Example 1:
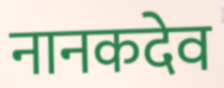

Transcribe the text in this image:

नानकदेव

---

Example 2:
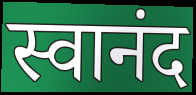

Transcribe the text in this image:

स्वानंद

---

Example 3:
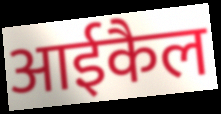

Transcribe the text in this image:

आईकैल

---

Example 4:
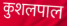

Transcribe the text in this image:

कुशलपाल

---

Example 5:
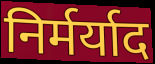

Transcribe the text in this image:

निर्मर्याद